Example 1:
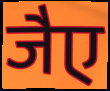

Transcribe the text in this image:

जैए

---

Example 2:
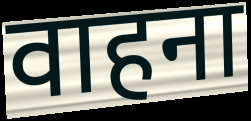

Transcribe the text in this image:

वाहना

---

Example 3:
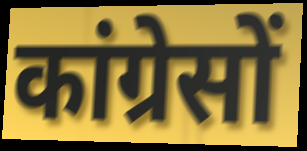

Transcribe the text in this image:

कांग्रेसों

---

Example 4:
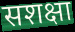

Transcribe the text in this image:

सशक्षा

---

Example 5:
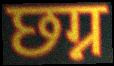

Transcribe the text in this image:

छग्न